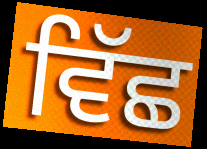
ਵਿੱਛ